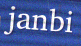
janbi